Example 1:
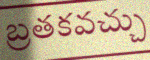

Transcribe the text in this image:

బ్రతకవచ్చు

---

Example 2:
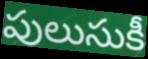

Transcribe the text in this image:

పులుసుకీ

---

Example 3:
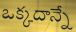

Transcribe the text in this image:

ఒక్కదాన్నే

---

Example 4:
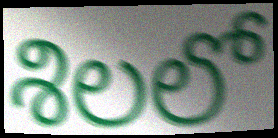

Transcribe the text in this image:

శిలలో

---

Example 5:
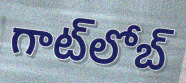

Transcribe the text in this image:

గాట్‍లోబ్